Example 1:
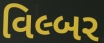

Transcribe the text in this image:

વિલ્બર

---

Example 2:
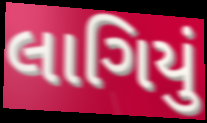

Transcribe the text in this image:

લાગિયું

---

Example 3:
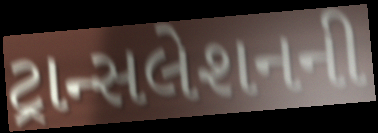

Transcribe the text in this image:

ટ્રાન્સલેશનની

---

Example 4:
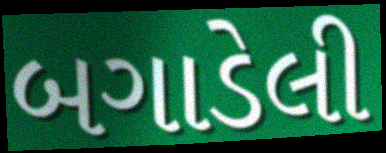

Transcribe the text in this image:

બગાડેલી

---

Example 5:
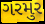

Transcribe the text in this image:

ગરમુર